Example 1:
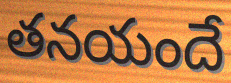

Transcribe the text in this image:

తనయందే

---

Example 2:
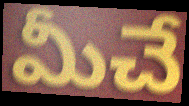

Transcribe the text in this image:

మీచే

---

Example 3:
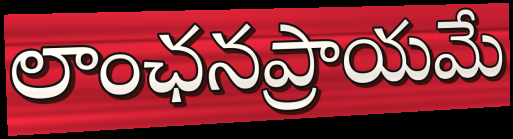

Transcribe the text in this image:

లాంఛనప్రాయమే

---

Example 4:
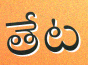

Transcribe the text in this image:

తేట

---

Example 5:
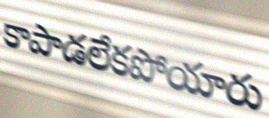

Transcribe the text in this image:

కాపాడలేకపోయారు